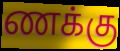
ணக்கு